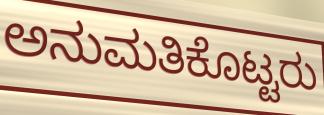
ಅನುಮತಿಕೊಟ್ಟರು